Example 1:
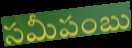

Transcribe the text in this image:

సమీపంబు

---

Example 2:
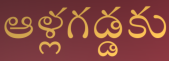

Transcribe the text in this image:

ఆళ్లగడ్డకు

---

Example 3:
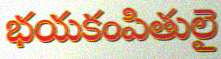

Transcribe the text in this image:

భయకంపితులై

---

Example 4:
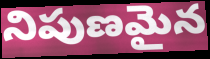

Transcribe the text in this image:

నిపుణమైన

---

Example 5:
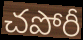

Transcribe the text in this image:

చపోరీ